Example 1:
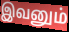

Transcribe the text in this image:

இவனும்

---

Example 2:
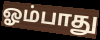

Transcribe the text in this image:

ஓம்பாது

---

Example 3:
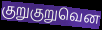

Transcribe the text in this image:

குறுகுறுவென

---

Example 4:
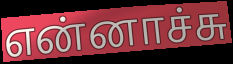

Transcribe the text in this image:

என்னாச்சு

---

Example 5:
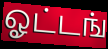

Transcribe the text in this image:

ஓட்டங்